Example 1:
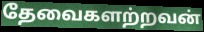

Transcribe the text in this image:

தேவைகளற்றவன்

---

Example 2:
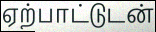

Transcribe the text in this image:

ஏற்பாட்டுடன்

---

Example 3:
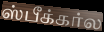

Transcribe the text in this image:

ஸ்பீக்கர்ல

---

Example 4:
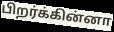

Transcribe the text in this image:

பிறர்க்கின்னா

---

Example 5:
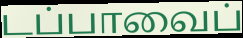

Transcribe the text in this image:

டப்பாவைப்